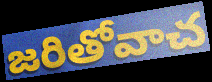
జరితోవాచ